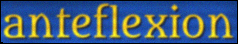
anteflexion